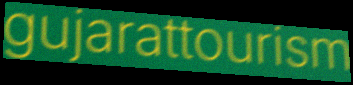
gujarattourism